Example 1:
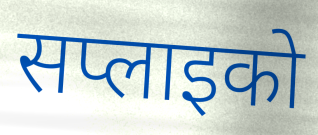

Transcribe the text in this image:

सप्लाइको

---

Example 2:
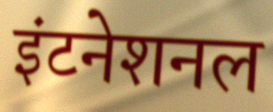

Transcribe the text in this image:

इंटनेशनल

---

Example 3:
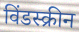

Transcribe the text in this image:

विंडस्क्रीन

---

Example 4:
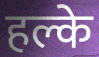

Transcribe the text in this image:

हल्‍के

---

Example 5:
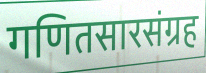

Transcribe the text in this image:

गणितसारसंग्रह